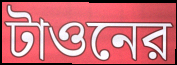
টাওনের